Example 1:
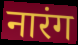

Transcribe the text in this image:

नारंग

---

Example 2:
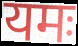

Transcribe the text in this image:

यमः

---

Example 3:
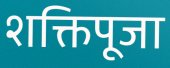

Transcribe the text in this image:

शक्तिपूजा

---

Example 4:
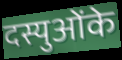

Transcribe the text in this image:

दस्युओंके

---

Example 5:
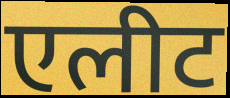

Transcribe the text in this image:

एलीट